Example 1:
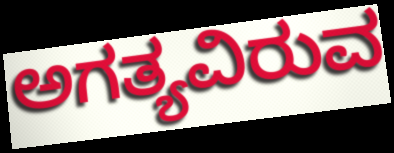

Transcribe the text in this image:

ಅಗತ್ಯವಿರುವ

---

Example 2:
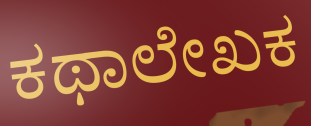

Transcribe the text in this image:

ಕಥಾಲೇಖಕ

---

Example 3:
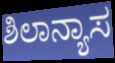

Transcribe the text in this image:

ಶಿಲಾನ್ಯಾಸ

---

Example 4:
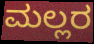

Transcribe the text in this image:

ಮಲ್ಲರ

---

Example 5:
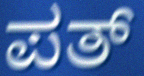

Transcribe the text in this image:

ಪತ್